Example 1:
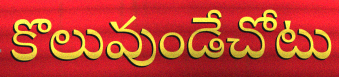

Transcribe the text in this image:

కొలువుండేచోటు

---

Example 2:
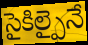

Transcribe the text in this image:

సైకిల్పైనే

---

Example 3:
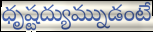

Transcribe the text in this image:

ధృష్టద్యుమ్నుడంటే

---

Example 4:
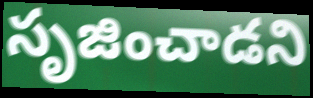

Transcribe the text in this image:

సృజించాడని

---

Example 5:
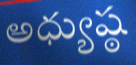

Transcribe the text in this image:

అధ్యుష్ఠ